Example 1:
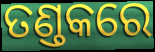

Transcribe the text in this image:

ତଣ୍ଡକରେ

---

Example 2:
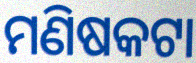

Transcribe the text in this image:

ମଣିଷକଟା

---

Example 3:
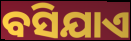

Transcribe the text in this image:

ବସିଯାଏ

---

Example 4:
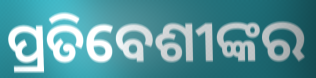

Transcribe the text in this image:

ପ୍ରତିବେଶୀଙ୍କର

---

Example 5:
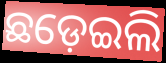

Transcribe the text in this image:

ଛଡ଼େଇଲି